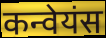
कन्वेयंस